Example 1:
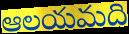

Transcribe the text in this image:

ఆలయమది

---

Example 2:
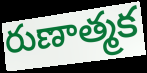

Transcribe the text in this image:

రుణాత్మక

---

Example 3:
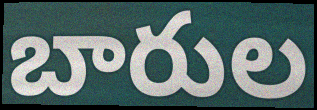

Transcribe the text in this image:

బారుల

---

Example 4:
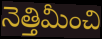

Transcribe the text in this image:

నెత్తిమీంచి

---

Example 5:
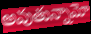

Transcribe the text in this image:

అవుతున్నామో